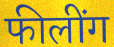
फीलींग